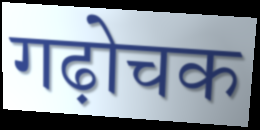
गढ़ोचक